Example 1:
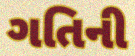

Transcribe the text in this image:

ગતિની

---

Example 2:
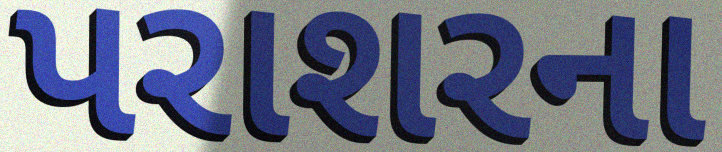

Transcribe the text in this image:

પરાશરના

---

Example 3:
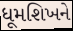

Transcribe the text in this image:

ધૂમશિખને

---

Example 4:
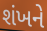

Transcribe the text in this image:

શંખને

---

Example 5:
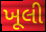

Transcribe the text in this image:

ખૂલી